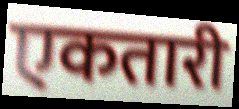
एकतारी